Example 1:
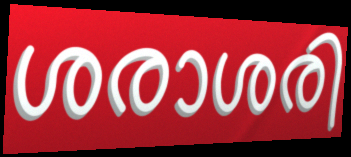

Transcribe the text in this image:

ശരാശരി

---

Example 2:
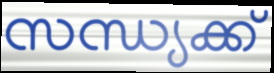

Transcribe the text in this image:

സന്ധ്യക്ക്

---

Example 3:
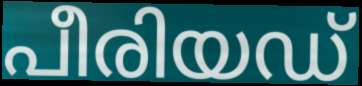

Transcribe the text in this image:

പീരിയഡ്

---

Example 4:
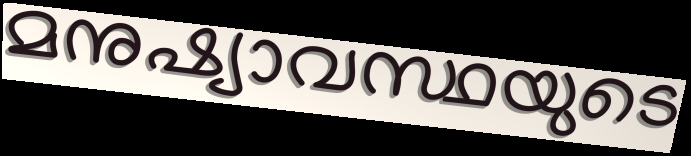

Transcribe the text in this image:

മനുഷ്യാവസ്ഥയുടെ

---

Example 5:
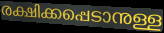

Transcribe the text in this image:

രക്ഷിക്കപ്പെടാനുള്ള